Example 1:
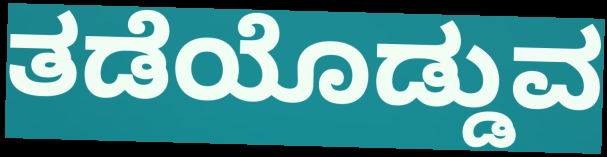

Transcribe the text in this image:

ತಡೆಯೊಡ್ಡುವ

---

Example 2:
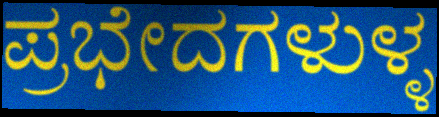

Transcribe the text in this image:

ಪ್ರಭೇದಗಳುಳ್ಳ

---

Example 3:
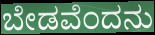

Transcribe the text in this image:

ಬೇಡವೆಂದನು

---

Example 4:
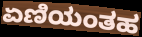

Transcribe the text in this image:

ಏಣಿಯಂತಹ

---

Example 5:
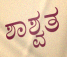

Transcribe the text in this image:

ಶಾಶ್ವತ